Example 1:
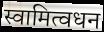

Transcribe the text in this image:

स्वामित्वधन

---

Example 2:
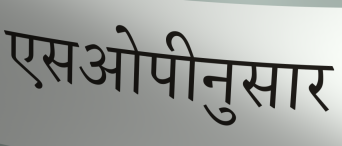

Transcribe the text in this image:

एसओपीनुसार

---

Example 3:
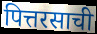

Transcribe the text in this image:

पित्तरसाची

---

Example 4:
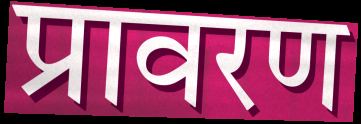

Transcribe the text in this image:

प्रावरण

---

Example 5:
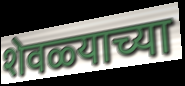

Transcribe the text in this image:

शेवळ्याच्या